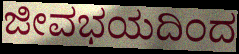
ಜೀವಭಯದಿಂದ